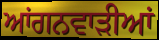
ਆਂਗਨਵਾੜੀਆਂ